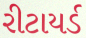
રીટાયર્ડ